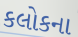
કલોકના